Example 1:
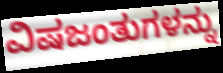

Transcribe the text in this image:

ವಿಷಜಂತುಗಳನ್ನು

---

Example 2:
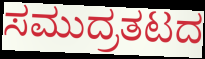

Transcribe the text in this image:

ಸಮುದ್ರತಟದ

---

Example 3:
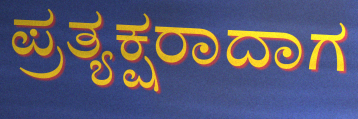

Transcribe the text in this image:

ಪ್ರತ್ಯಕ್ಷರಾದಾಗ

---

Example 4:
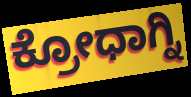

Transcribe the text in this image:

ಕ್ರೋಧಾಗ್ನಿ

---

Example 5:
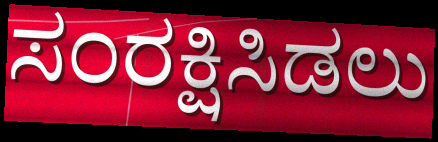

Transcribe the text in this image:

ಸಂರಕ್ಷಿಸಿಡಲು